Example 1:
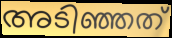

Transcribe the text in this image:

അടിഞ്ഞത്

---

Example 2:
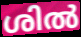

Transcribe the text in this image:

ശിൽ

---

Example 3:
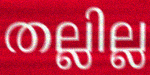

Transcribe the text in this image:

തല്ലില്ല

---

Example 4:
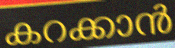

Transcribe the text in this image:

കറക്കാൻ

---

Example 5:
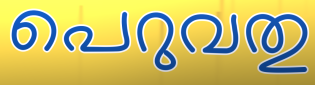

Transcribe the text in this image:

പെറുവതു